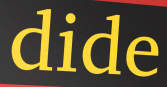
dide